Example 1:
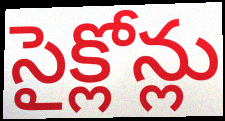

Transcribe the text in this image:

సైక్లోన్లు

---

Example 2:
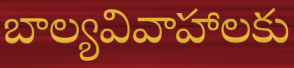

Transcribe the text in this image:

బాల్యవివాహాలకు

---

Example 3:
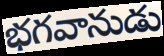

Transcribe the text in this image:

భగవానుడు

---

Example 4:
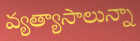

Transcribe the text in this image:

వ్యత్యాసాలున్నా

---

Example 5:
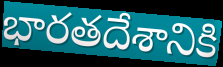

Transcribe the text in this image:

భారతదేశానికి